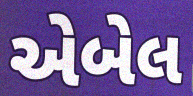
એબેલ